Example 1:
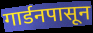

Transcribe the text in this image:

गार्डनपासून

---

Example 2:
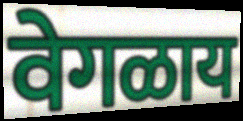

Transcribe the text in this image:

वेगळाय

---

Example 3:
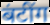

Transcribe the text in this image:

बंटींग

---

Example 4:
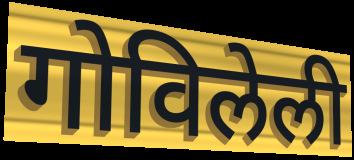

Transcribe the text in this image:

गोविलेली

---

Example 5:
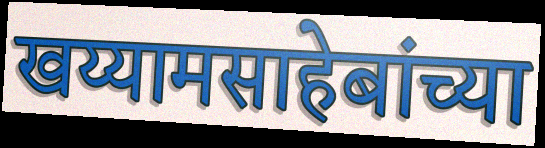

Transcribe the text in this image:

खय्यामसाहेबांच्या